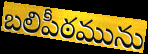
బలిపీఠమును